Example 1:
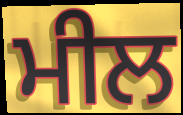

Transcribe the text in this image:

ਮੀਲ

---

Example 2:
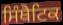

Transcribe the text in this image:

ਸਿੰਥੈਟਿਕ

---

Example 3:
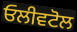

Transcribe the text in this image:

ਓਲੀਵਟੋਲ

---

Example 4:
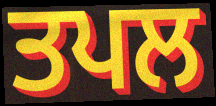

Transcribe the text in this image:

ਤਪਲ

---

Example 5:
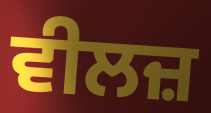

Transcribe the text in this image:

ਵੀਲਜ਼